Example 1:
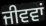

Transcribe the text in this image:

ਜੀਵਵਾਂ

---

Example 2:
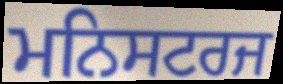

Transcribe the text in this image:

ਮਨਿਸਟਰਜ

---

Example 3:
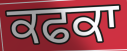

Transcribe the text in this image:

ਕਫਕਾ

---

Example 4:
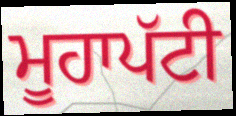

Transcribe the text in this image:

ਮੂਹਾਪੱਟੀ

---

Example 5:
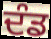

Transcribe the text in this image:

ਦੰਡ